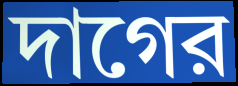
দাগের